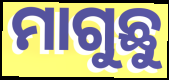
ମାଗୁଛୁ